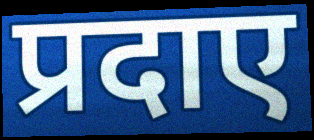
प्रदाए